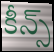
కీన్స్